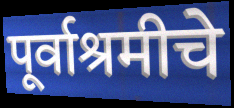
पूर्वाश्रमीचे